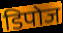
डिपोज